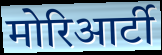
मोरिआर्टी